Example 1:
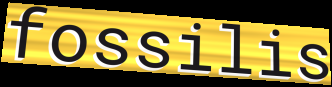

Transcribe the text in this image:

fossilis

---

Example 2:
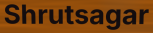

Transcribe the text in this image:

Shrutsagar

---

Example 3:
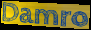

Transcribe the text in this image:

Damro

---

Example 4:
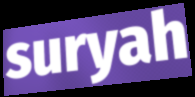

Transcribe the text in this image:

suryah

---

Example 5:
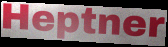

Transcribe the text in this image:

Heptner